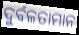
ଦୁର୍ବଳତାମାନ